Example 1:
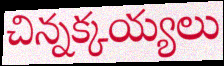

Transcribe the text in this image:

చిన్నక్కయ్యలు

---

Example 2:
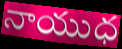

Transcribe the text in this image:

నాయుధ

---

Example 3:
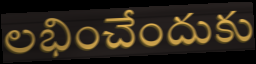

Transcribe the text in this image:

లభించేందుకు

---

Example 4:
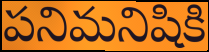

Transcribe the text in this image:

పనిమనిషికి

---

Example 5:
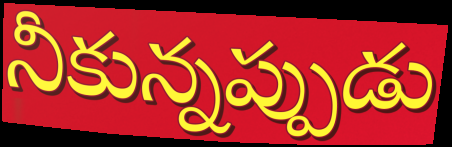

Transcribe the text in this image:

నీకున్నప్పుడు